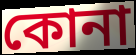
কোনা